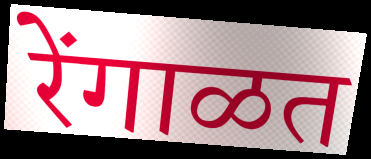
रेंगाळत